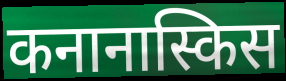
कनानास्किस